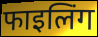
फाइलिंग